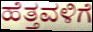
ಹೆತ್ತವಳಿಗೆ